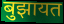
बुझायत